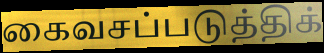
கைவசப்படுத்திக்